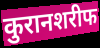
कुरानशरीफ